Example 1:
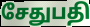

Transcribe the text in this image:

சேதுபதி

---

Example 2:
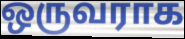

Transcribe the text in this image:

ஒருவராக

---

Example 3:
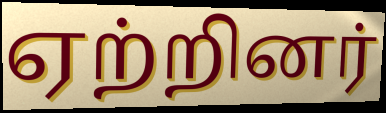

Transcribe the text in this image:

ஏற்றினர்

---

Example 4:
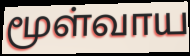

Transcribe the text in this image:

மூள்வாய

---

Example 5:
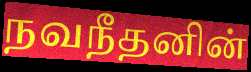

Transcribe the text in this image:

நவநீதனின்